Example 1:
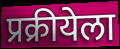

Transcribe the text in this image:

प्रक्रीयेला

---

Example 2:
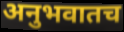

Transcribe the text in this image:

अनुभवातच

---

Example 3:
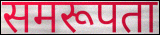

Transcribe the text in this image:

समरूपता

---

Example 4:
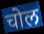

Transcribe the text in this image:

चोल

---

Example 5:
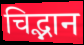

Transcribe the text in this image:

चिद्भान